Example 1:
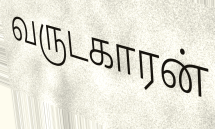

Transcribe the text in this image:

வருடகாரன்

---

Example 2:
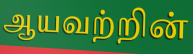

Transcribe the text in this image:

ஆயவற்றின்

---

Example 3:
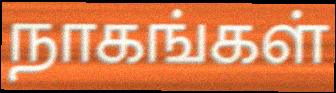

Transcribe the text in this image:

நாகங்கள்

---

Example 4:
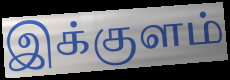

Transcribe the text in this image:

இக்குளம்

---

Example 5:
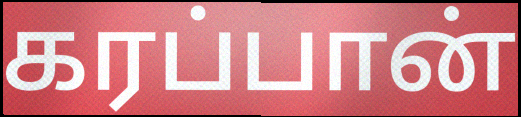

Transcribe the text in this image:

கரப்பான்